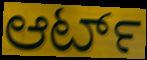
ಆರ್ಟ್